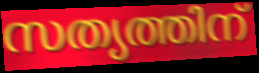
സത്യത്തിന്